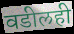
वडीलही